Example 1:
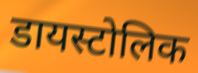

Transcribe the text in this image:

डायस्टोलिक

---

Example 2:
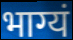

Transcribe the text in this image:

भाग्यं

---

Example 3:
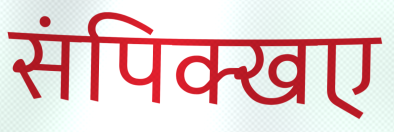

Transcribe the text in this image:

संपिक्खए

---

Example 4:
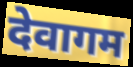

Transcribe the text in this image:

देवागम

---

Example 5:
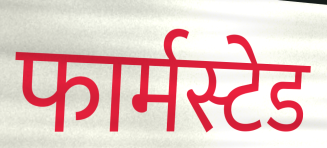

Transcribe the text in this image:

फार्मस्टेड